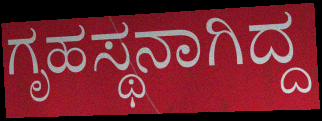
ಗೃಹಸ್ಥನಾಗಿದ್ದ